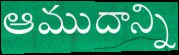
ఆముదాన్ని